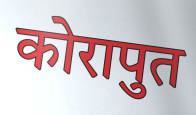
कोरापुत